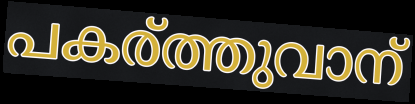
പകര്ത്തുവാന്